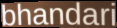
bhandari